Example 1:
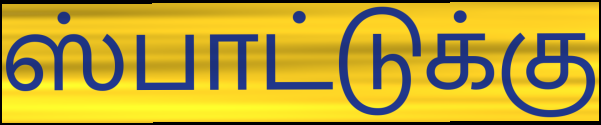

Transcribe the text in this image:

ஸ்பாட்டுக்கு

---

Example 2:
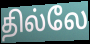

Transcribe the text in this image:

தில்லே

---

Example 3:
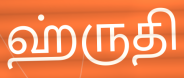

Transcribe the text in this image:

ஹ்ருதி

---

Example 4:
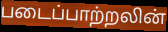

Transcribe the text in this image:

படைப்பாற்றலின்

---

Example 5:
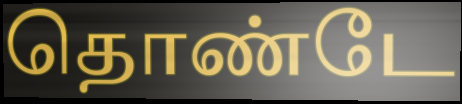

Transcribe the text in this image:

தொண்டே